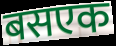
बसएक